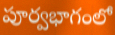
పూర్వభాగంలో